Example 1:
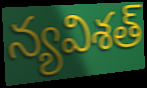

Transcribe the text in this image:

న్యవిశత్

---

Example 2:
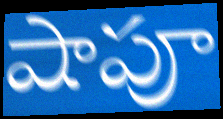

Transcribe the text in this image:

షాపూ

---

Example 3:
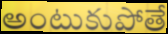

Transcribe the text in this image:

అంటుకుపోతే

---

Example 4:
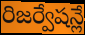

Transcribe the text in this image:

రిజర్వేషన్లే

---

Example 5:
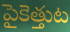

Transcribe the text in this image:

పైకెత్తుట